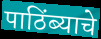
पाठिंब्याचे